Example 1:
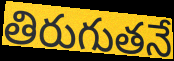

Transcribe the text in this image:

తిరుగుతనే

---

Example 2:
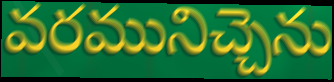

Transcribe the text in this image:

వరమునిచ్చెను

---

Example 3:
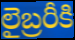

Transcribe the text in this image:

లైబ్రరీకి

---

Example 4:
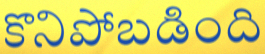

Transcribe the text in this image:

కొనిపోబడింది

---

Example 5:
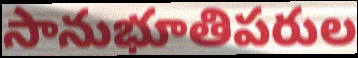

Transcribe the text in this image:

సానుభూతిపరుల